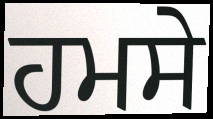
ਹਮਸੇ